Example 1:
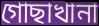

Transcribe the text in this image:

গোছাখানা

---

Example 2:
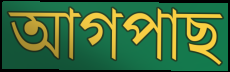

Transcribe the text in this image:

আগপাছ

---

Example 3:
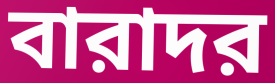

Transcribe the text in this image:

বারাদর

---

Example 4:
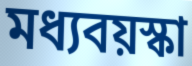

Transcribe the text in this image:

মধ্যবয়স্কা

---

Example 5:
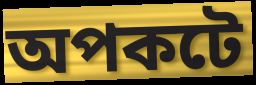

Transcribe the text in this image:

অপকটে